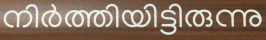
നിർത്തിയിട്ടിരുന്നു